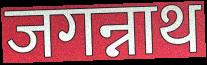
जगन्नाथ